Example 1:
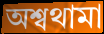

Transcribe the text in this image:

অশ্বথামা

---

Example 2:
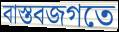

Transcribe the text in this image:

বাস্তবজগতে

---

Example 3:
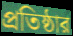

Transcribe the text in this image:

প্রতিষ্ঠার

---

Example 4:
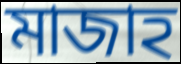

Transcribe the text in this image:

মাজাহ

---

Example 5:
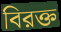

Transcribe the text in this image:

বিরক্ত